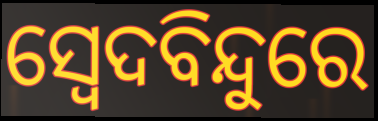
ସ୍ୱେଦବିନ୍ଦୁରେ